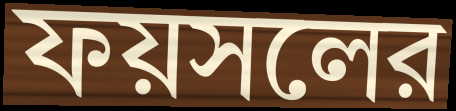
ফয়সলের